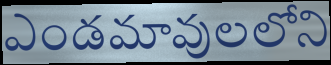
ఎండమావులలోని